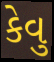
કેવુ